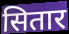
सितार